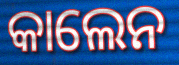
କାଲେନ